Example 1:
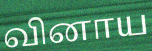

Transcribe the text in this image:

வினாய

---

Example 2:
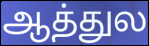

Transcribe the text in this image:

ஆத்துல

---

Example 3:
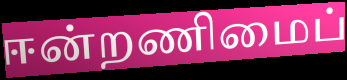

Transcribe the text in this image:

ஈன்றணிமைப்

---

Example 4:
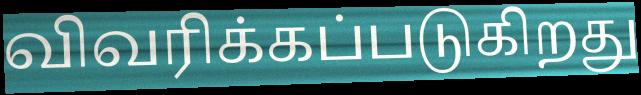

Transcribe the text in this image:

விவரிக்கப்படுகிறது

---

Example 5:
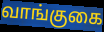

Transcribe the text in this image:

வாங்குகை